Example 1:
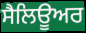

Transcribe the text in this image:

ਸੈਲਿਊਅਰ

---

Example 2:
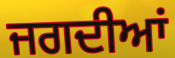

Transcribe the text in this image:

ਜਗਦੀਆਂ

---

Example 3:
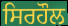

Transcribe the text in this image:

ਸਿਰਹੌਲ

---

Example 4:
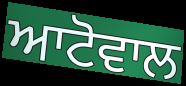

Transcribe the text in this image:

ਆਟੋਵਾਲ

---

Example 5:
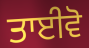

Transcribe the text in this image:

ਤਾਈਵੋ